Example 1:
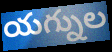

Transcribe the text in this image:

యగ్నుల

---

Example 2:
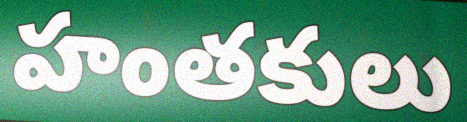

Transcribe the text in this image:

హంతకులు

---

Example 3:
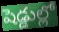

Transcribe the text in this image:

షెడ్డుల్లో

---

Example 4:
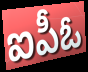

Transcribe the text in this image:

ఐపీఓ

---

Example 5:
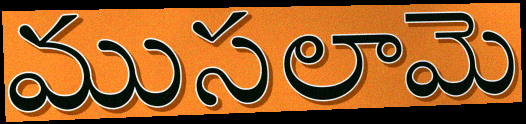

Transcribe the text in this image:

ముసలామె